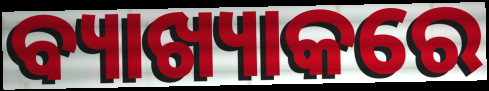
ବ୍ୟାଖ୍ୟାକରେ